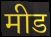
मीड